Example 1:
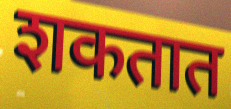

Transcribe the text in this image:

शकतात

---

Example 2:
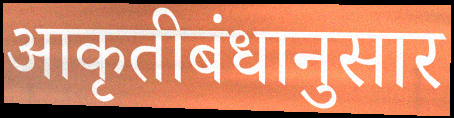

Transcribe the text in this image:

आकृतीबंधानुसार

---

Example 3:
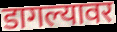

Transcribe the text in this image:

डागल्यावर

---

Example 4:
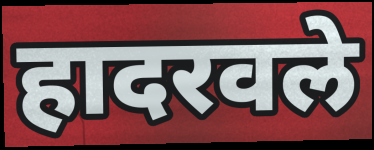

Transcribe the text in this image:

हादरवले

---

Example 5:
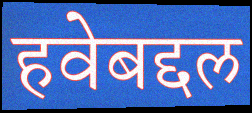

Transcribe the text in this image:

हवेबद्दल